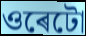
ওৰেটো